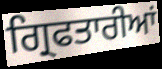
ਗ੍ਰਿਫਤਾਰੀਆਂ